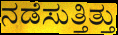
ನಡೆಸುತ್ತಿತ್ತು